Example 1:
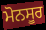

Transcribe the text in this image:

ਮੋਨਸੂਰ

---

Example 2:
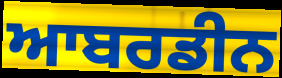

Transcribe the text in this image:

ਆਬਰਡੀਨ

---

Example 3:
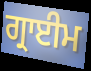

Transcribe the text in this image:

ਗ੍ਰਾਈਮ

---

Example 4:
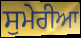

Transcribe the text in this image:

ਸੁਮੇਰੀਆ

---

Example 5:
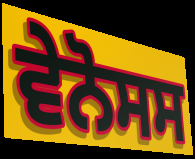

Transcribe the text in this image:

ਵੇਨੋਸਸ